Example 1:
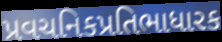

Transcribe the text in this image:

પ્રવચનિકપ્રતિભાધારક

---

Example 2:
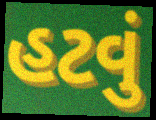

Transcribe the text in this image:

હટવું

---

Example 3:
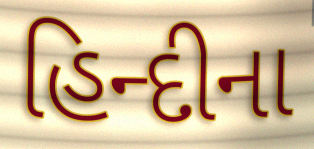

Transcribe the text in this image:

હિન્દીના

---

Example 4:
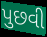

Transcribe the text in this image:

પુછવી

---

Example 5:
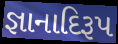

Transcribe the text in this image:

જ્ઞાનાદિરૂપ